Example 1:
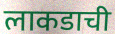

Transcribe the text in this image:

लाकडाची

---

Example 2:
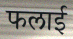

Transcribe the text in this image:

फलाई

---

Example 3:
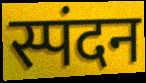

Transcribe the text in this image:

स्पंदन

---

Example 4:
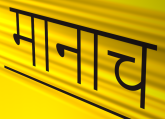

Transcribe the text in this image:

मानाच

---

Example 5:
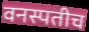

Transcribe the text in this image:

वनस्पतीच